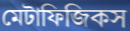
মেটাফিজিকস